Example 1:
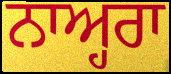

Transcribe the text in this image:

ਨਾਅ੍ਹਰਾ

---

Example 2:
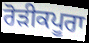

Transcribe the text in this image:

ਰੋੜੀਕਪੂਰਾ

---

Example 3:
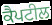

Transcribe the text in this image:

ਕੈਪਟੀਲ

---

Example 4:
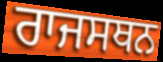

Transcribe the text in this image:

ਰਾਜਸਥਨ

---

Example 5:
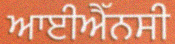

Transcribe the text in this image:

ਆਈਐੱਨਸੀ